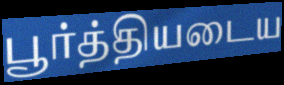
பூர்த்தியடைய